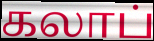
கலாப்